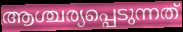
ആശ്ചര്യപ്പെടുന്നത്